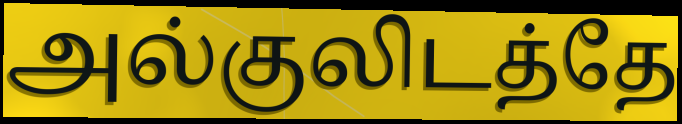
அல்குலிடத்தே